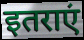
इतराएं